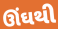
ઊંઘથી